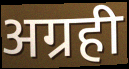
अग्रही